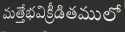
మత్తేభవిక్రీడితములో